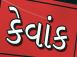
કેવાંક